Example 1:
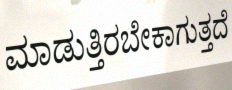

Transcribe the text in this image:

ಮಾಡುತ್ತಿರಬೇಕಾಗುತ್ತದೆ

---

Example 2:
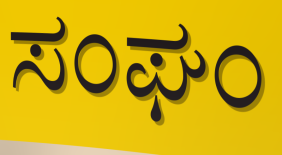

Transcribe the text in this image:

ಸಂಘಂ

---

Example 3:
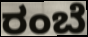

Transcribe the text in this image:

ರಂಬೆ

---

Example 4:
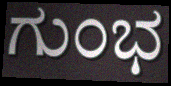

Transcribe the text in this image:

ಗುಂಭ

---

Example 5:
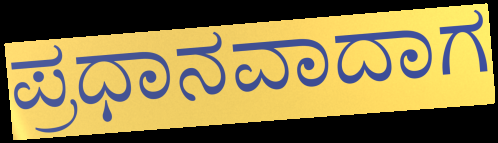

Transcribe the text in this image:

ಪ್ರಧಾನವಾದಾಗ